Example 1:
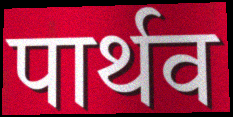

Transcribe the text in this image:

पार्थव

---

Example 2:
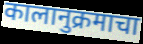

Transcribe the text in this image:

कालानुक्रमाचा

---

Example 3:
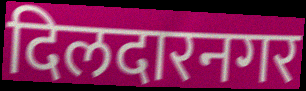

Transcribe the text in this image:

दिलदारनगर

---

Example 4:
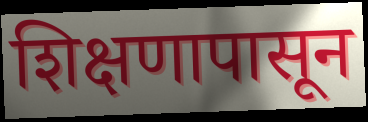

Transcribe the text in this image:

शिक्षणापासून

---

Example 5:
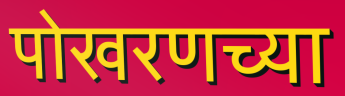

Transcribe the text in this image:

पोखरणच्या